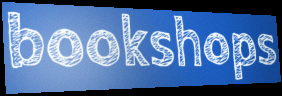
bookshops